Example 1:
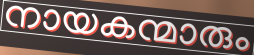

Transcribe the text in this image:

നായകന്മാരും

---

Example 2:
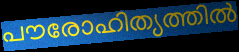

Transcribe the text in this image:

പൗരോഹിത്യത്തിൽ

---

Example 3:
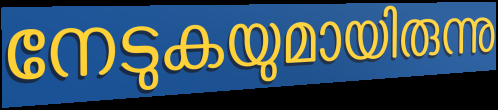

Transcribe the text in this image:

നേടുകയുമായിരുന്നു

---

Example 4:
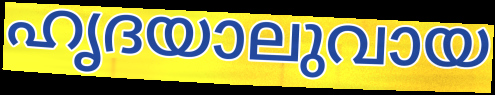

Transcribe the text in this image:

ഹൃദയാലുവായ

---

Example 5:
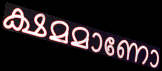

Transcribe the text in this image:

ക്ഷമമാണോ